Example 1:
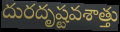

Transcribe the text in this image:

దురదృష్టవశాత్తు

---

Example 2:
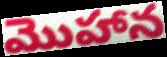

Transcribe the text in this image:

మొహాన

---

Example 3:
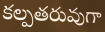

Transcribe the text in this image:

కల్పతరువుగా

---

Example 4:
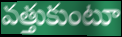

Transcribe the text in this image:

వత్తుకుంటూ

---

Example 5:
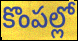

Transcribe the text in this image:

కొంపల్లో